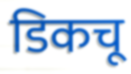
डिकचू